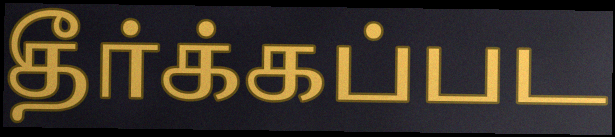
தீர்க்கப்பட